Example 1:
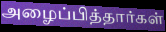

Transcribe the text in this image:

அழைப்பித்தார்கள்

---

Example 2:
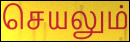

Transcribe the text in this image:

செயலும்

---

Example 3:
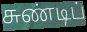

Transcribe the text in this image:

சுண்டிப்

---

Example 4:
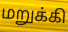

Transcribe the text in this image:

மறுக்கி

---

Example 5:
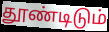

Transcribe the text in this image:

தூண்டிடும்